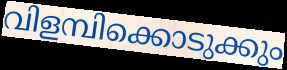
വിളമ്പിക്കൊടുക്കും